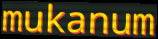
mukanum